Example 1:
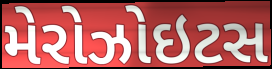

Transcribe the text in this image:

મેરોઝોઇટસ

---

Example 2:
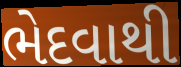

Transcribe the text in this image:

ભેદવાથી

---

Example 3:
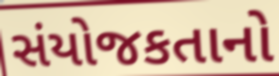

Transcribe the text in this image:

સંયોજકતાનો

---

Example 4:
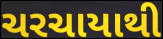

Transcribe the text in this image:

ચરચાયાથી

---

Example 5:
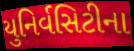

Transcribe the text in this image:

યુનિર્વસિટીના